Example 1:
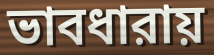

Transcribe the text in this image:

ভাবধারায়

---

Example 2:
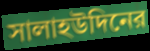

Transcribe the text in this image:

সালাহউদিনের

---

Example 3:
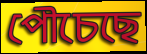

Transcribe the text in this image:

পৌচেছে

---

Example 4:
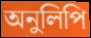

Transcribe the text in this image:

অনুলিপি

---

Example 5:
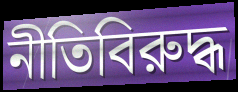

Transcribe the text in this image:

নীতিবিরুদ্ধ